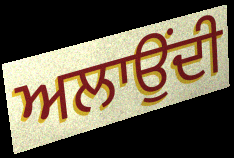
ਅਲਾਉਂਦੀ